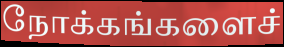
நோக்கங்களைச்